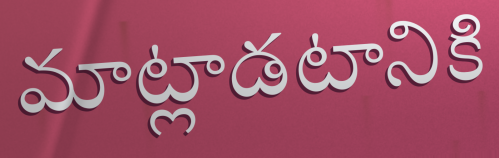
మాట్లాడటానికి